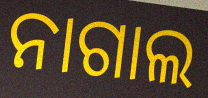
ନାଗାଲ